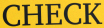
CHECK